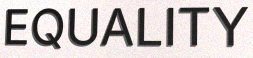
EQUALITY